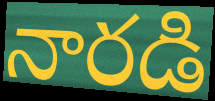
నారడి